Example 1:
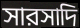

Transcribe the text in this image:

সারসাদি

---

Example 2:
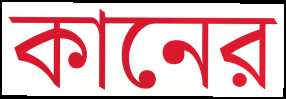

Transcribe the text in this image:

কানের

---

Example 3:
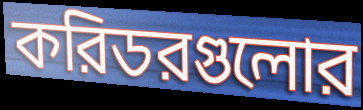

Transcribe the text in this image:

করিডরগুলোর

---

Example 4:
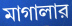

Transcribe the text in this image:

মাগালার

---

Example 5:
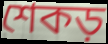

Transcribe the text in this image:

শেকড়